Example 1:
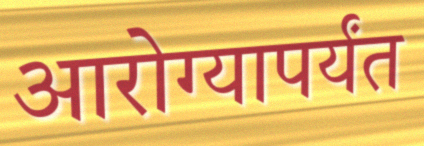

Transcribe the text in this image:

आरोग्यापर्यंत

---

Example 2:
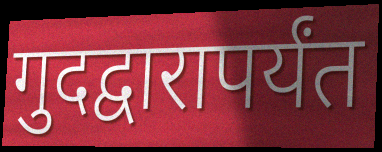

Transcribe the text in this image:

गुदद्वारापर्यंत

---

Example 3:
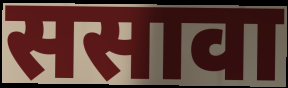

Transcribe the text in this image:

ससावा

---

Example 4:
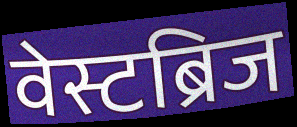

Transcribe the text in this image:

वेस्टब्रिज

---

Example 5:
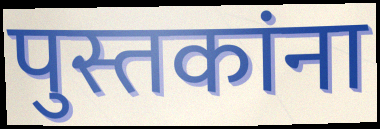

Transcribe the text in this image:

पुस्तकांना